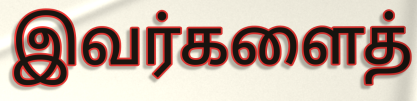
இவர்களைத்